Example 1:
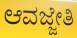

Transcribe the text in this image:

ಆವಜ್ಜೇತಿ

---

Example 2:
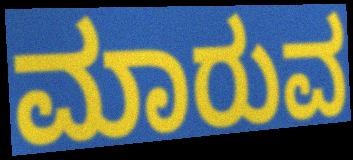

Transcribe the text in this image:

ಮಾರುವ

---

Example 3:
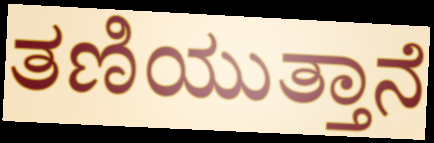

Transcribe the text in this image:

ತಣಿಯುತ್ತಾನೆ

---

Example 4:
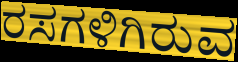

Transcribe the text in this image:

ರಸಗಳಿಗಿರುವ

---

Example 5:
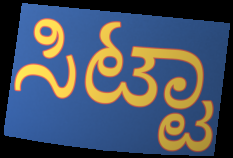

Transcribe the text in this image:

ಸಿಟ್ಟಾ